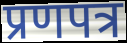
प्रणपत्र